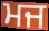
ਮਜ